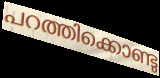
പറത്തിക്കൊണ്ടു